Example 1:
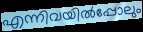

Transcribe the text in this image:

എന്നിവയിൽപ്പോലും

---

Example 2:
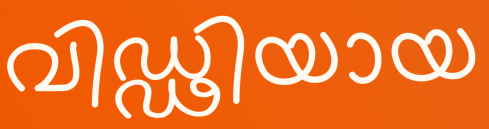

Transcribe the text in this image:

വിഡ്ഢിയായ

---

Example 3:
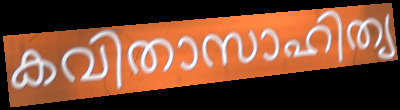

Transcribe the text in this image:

കവിതാസാഹിത്യ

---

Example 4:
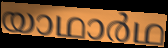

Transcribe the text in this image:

യാഥാർഥ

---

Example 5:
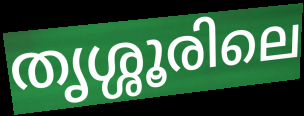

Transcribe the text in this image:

തൃശ്ശൂരിലെ